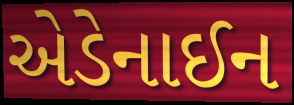
એડેનાઈન